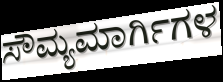
ಸೌಮ್ಯಮಾರ್ಗಿಗಳ